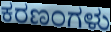
ಕರಣಂಗಳು